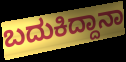
ಬದುಕಿದ್ದಾನಾ